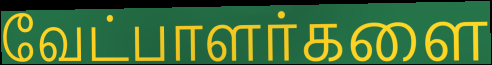
வேட்பாளர்களை